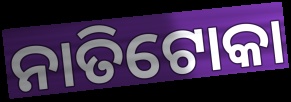
ନାତିଟୋକା